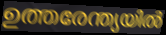
ഉത്തരേന്ത്യയിൽ